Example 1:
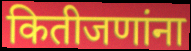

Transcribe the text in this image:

कितीजणांना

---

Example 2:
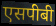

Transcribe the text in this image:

एसपीबी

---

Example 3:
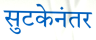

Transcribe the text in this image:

सुटकेनंतर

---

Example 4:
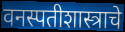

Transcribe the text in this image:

वनस्पतीशास्त्राचे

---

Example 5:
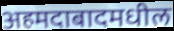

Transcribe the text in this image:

अहमदाबादमधील